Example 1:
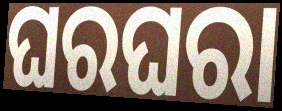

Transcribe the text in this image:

ଘରଘରା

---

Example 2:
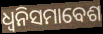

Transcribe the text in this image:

ଧ୍ୱନିସମାବେଶ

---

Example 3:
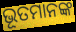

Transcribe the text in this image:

ଭୂତମାନଙ୍କ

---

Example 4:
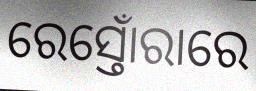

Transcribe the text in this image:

ରେସ୍ତୋଁରାରେ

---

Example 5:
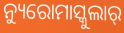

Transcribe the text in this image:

ନ୍ୟୁରୋମାସ୍କୁଲାର୍